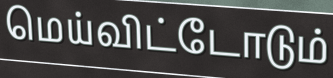
மெய்விட்டோடும்